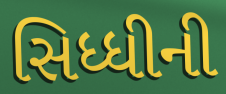
સિધ્ધીની